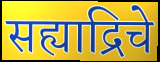
सह्याद्रिचे